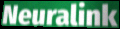
Neuralink